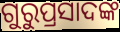
ଗୁରୁପ୍ରସାଦଙ୍କ